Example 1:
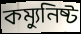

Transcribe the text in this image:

কম্যুনিষ্ট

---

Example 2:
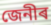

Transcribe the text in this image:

জেনীৰ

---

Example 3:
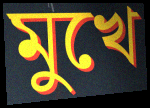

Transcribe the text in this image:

মুখে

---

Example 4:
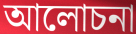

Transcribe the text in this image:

আলোচনা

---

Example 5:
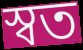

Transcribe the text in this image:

স্বত